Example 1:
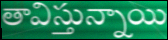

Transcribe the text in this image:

తావిస్తున్నాయి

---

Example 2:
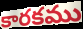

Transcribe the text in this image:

కారకము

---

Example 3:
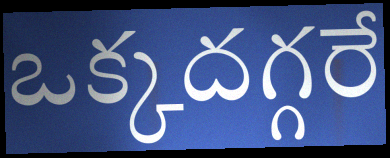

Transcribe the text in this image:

ఒక్కదగ్గరే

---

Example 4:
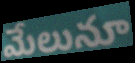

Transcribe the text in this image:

మేలునూ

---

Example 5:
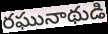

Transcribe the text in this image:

రఘునాథుడి